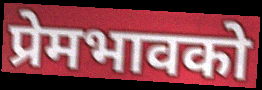
प्रेमभावको